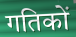
गतिकों